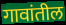
गावांतील